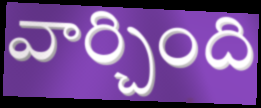
వార్చింది